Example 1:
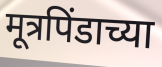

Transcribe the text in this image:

मूत्रपिंडाच्या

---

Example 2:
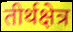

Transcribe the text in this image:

तीर्थक्षेत्र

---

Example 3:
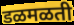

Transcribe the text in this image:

डळमळती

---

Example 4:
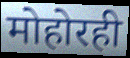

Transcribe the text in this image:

मोहोरही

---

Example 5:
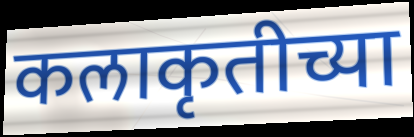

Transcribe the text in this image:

कलाकृतीच्या